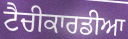
ਟੈਚੀਕਾਰਡੀਆ